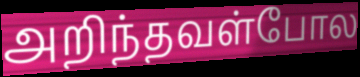
அறிந்தவள்போல